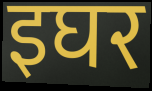
इघर